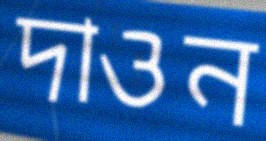
দাওন